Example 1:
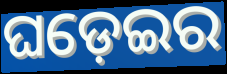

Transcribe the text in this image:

ଘଡ଼େଇର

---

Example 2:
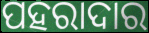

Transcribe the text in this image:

ପହରାଦାର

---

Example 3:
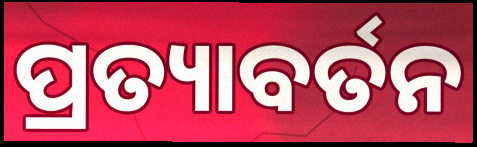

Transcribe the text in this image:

ପ୍ରତ୍ୟାବର୍ତନ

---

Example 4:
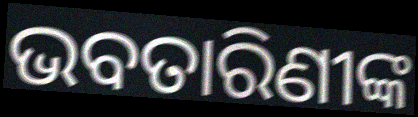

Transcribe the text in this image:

ଭବତାରିଣୀଙ୍କ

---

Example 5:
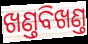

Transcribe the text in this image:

ଖଣ୍ତବିଖଣ୍ତ